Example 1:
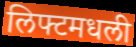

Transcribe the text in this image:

लिफ्टमधली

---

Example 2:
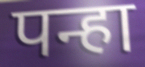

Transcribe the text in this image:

पन्हा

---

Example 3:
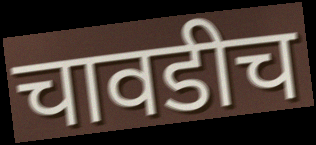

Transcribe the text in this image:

चावडीच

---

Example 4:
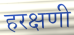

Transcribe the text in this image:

हरक्षणी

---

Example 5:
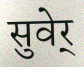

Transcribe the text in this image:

सुवेर्